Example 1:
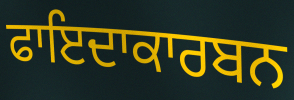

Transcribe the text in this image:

ਫਾਇਦਾਕਾਰਬਨ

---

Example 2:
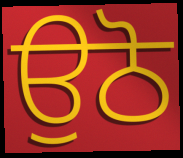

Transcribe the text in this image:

ਉਠੋ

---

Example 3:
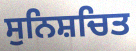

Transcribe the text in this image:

ਸੁਨਿਸ਼ਚਿਤ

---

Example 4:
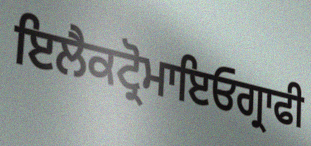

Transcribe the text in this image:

ਇਲੈਕਟ੍ਰੋਮਾਇਓਗ੍ਰਾਫੀ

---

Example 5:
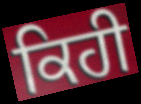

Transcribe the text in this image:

ਕਿਹੀ